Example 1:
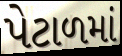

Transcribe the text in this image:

પેટાળમાં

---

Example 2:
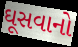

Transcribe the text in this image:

ઘૂસવાનો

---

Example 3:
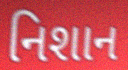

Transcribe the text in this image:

નિશાન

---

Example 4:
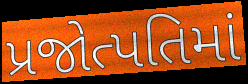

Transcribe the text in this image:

પ્રજોત્પતિમાં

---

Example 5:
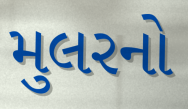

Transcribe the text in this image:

મુલરનો